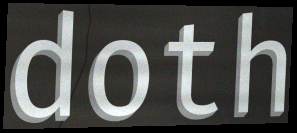
doth